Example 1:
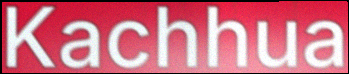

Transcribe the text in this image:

Kachhua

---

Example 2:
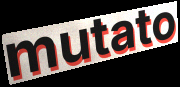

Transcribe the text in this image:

mutato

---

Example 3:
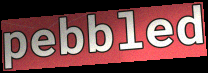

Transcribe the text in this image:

pebbled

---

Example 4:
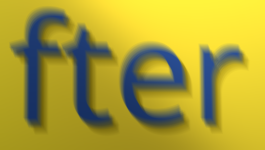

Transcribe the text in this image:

fter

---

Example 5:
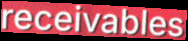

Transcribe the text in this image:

receivables